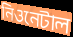
নিওনেটাল